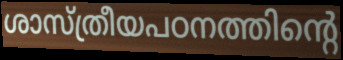
ശാസ്ത്രീയപഠനത്തിന്റെ